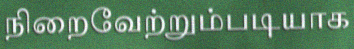
நிறைவேற்றும்படியாக